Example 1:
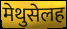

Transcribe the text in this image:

मेथुसेलह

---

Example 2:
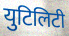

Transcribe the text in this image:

युटिलिटी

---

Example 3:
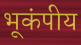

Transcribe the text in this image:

भूकंपीय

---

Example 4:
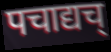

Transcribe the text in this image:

पचाद्यच्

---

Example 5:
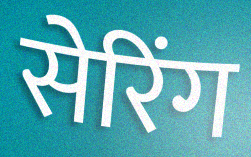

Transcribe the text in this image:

सेरिंग